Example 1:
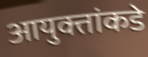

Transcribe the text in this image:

आयुक्तांकडे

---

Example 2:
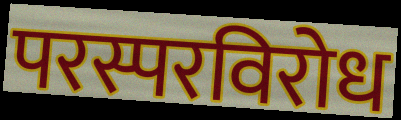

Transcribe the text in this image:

परस्परविरोध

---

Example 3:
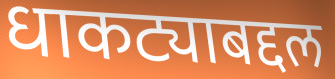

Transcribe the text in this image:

धाकट्याबद्दल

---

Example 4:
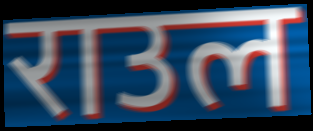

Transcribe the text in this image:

राउल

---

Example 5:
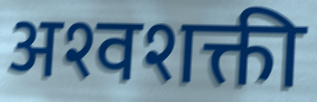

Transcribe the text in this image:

अश्वशक्ती